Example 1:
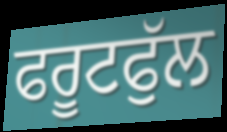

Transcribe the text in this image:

ਫਰੂਟਫੁੱਲ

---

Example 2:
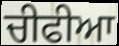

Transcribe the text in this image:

ਚੀਫੀਆ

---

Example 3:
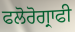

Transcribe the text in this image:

ਫਲੋਰੋਗ੍ਰਾਫੀ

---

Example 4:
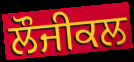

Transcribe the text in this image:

ਲੌਜੀਕਲ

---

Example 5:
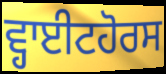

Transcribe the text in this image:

ਵ੍ਹਾਈਟਹੋਰਸ